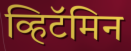
व्हिटॅमिन